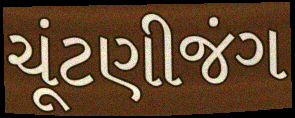
ચૂંટણીજંગ